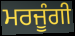
ਮਰਜੂੰਗੀ